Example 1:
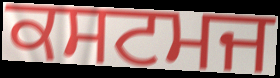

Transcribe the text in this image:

ਕਸਟਮਜ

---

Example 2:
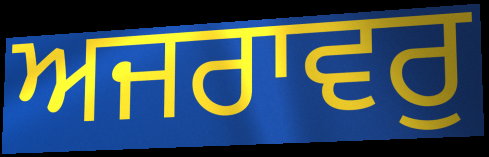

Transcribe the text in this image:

ਅਜਰਾਵਰੁ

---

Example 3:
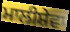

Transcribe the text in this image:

ਮਾਲੀਸ਼ੇਵਾ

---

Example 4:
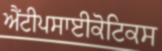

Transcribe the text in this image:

ਐਂਟੀਪਸਾਈਕੋਟਿਕਸ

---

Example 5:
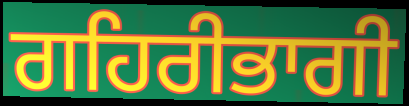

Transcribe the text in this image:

ਗਹਿਰੀਭਾਗੀ